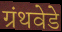
ग्रंथवेडे